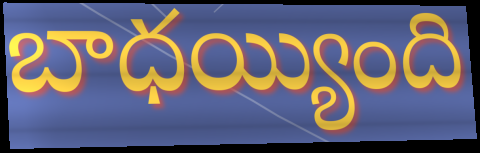
బాధయ్యింది